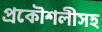
প্রকৌশলীসহ